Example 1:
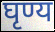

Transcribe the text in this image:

घृण्य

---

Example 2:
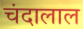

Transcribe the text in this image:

चंदालाल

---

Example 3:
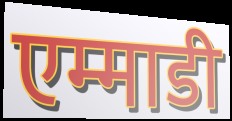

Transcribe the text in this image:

एम्माडी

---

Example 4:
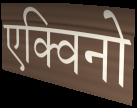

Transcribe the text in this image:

एक्विनो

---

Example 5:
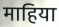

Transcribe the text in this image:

माहिया